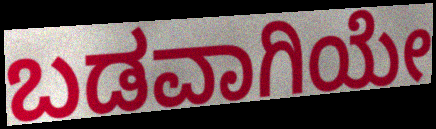
ಬಡವಾಗಿಯೇ